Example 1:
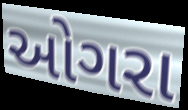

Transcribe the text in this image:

ઓગરા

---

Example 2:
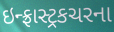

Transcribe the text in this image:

ઇન્ફ્રાસ્ટ્રકચરના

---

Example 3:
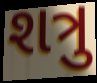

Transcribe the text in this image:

શત્રુ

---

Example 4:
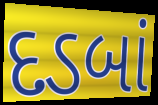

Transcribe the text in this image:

દડબાં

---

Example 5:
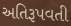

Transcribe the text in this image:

અતિરૂપવતી